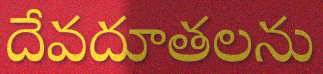
దేవదూతలను